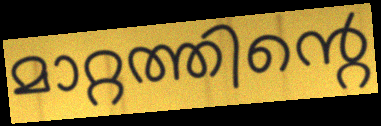
മാറ്റത്തിന്റെ